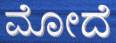
ಮೋದೆ